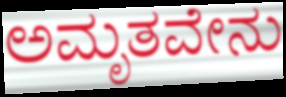
ಅಮೃತವೇನು